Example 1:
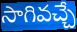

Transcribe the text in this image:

సాగివచ్చే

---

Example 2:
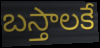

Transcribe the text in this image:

బస్తాలకే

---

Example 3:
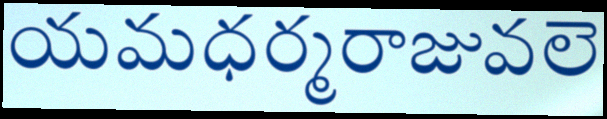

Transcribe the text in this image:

యమధర్మరాజువలె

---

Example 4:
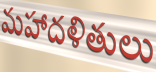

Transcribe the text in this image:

మహాదళితులు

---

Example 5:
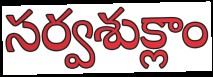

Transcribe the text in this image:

సర్వశుక్లాం